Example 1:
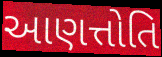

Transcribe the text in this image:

આણત્તોતિ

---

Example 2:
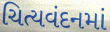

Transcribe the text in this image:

ચિત્યવંદનમાં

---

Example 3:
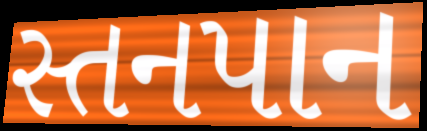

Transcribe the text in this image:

સ્તનપાન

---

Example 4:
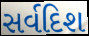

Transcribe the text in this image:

સર્વદિશ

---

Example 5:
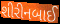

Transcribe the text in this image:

શીરીનબાઈ